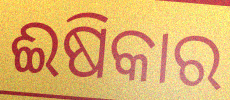
ଈଷିକାର